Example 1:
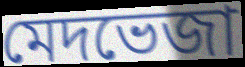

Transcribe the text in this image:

মেদভেজা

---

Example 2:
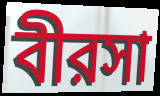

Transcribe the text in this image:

বীরসা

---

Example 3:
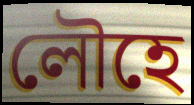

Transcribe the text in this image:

লৌহে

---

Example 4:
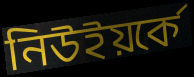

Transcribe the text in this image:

নিউইয়র্কে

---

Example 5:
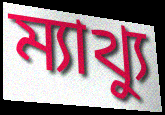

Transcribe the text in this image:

ম্যাথ্যু